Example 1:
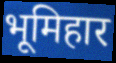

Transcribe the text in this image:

भूमिहार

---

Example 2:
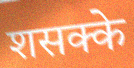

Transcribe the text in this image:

शसक्के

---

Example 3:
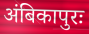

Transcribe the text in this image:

अंबिकापुरः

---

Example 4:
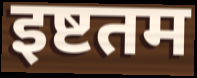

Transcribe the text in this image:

इष्टतम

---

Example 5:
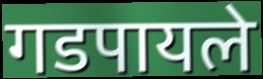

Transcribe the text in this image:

गडपायले